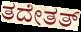
ತದೇತತ್